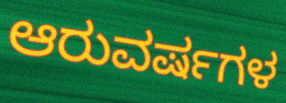
ಆರುವರ್ಷಗಳ